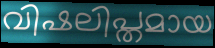
വിഷലിപ്തമായ